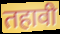
तहावी